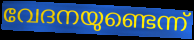
വേദനയുണ്ടെന്ന്